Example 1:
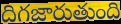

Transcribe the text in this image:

దిగజారుతుంది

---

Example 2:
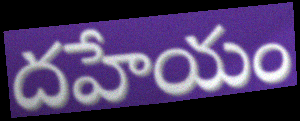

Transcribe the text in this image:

దహేయం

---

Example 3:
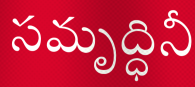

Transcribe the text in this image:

సమృద్ధినీ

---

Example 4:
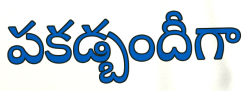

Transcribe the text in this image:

పకడ్బందీగా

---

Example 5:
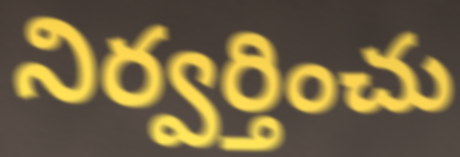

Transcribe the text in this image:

నిర్వర్తించు